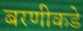
बरणीकडे